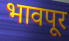
भावपूर